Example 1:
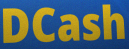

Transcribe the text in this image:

DCash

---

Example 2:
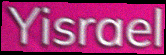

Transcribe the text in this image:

Yisrael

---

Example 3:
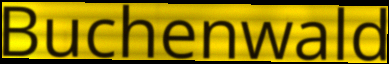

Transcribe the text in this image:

Buchenwald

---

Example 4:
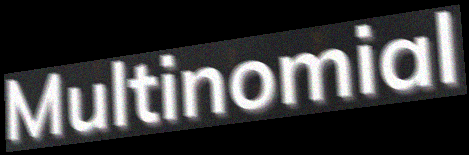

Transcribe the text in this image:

Multinomial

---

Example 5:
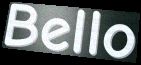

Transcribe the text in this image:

Bello